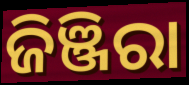
ଜିଞ୍ଜିରା